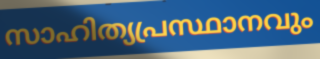
സാഹിത്യപ്രസ്ഥാനവും